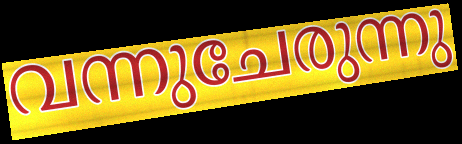
വന്നുചേരുന്നു